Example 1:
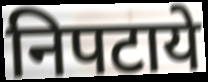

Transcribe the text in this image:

निपटाये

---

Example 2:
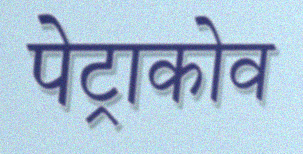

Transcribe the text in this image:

पेट्राकोव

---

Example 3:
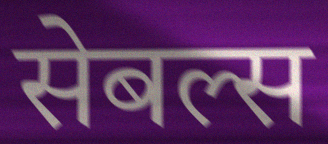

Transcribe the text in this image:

सेबल्स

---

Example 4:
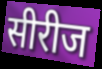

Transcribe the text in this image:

सीरीज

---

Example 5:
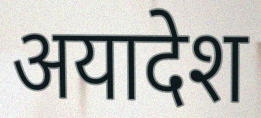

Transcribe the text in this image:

अयादेश